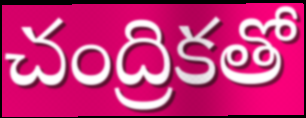
చంద్రికతో